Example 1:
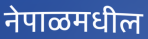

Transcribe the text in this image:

नेपाळमधील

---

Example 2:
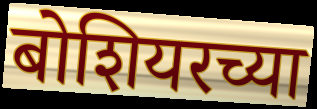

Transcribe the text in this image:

बोशियरच्या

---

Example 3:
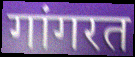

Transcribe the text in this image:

गांगरत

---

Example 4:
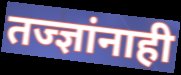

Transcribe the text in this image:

तज्ज्ञांनाही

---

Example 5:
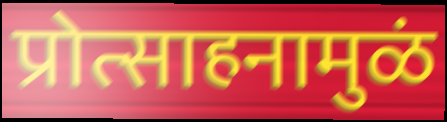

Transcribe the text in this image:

प्रोत्साहनामुळं